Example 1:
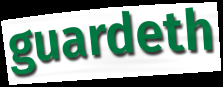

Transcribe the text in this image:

guardeth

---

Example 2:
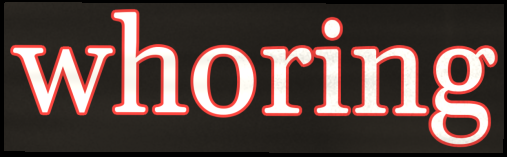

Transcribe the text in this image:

whoring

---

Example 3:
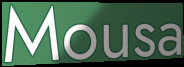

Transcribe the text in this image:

Mousa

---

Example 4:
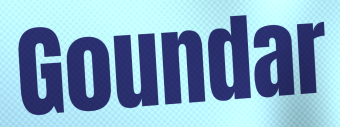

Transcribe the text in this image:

Goundar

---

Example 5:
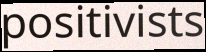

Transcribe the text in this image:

positivists